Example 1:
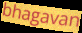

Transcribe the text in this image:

bhagavan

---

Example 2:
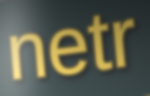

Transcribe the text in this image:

netr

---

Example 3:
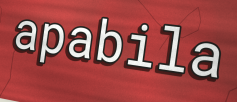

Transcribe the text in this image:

apabila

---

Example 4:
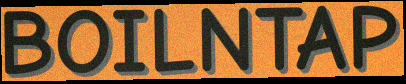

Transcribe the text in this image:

BOILNTAP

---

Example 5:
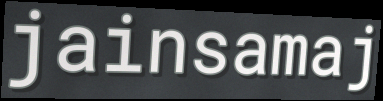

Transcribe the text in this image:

jainsamaj